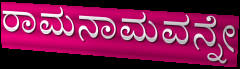
ರಾಮನಾಮವನ್ನೇ